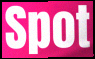
Spot